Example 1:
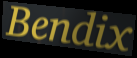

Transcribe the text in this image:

Bendix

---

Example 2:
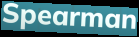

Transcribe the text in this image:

Spearman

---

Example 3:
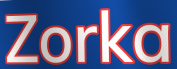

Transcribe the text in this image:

Zorka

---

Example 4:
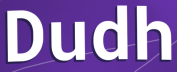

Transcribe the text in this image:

Dudh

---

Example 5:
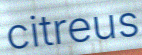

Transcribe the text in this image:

citreus